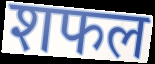
शफल